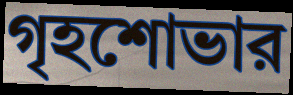
গৃহশোভার